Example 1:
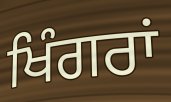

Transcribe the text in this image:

ਖਿੰਗਰਾਂ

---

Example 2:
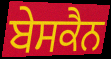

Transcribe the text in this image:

ਬੇਸਕੈਨ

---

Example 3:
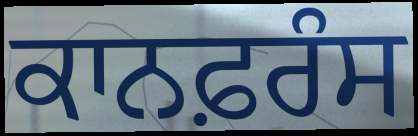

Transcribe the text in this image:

ਕਾਨਫ਼ਰੰਸ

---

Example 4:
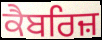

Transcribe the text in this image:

ਕੈਬਰਿਜ਼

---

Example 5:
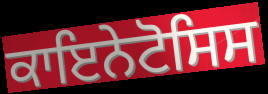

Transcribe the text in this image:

ਕਾਇਨੇਟੋਸਿਸ